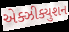
એક્ઝીક્યુશન